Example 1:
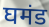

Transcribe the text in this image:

घमंड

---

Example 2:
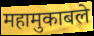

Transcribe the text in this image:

महामुकाबले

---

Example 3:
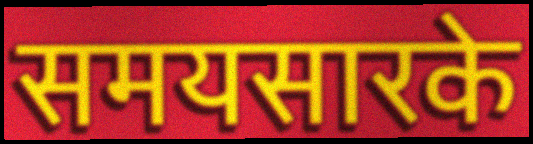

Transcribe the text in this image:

समयसारके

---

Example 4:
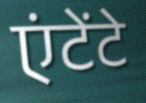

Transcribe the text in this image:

एंटेंटे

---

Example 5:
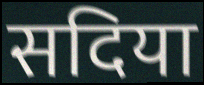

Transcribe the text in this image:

सदिया